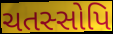
ચતસ્સોપિ